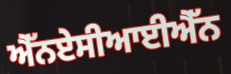
ਐੱਨਏਸੀਆਈਐੱਨ